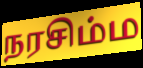
நரசிம்ம